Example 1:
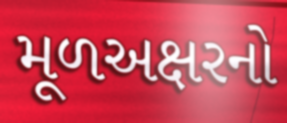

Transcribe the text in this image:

મૂળઅક્ષરનો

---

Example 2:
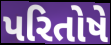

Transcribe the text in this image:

પરિતોષે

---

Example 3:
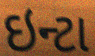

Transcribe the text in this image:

ઇન્ટા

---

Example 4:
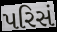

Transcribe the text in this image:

પરિસં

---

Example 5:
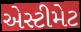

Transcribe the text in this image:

એસ્ટીમેટ